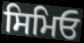
ਸਿਮਿਓ